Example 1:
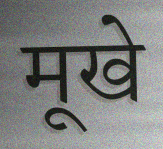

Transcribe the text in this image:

मूखे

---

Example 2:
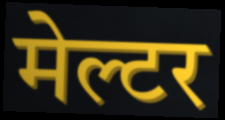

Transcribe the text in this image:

मेल्टर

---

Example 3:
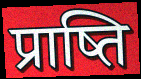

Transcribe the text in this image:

प्राष्ति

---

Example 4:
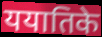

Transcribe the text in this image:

ययातिके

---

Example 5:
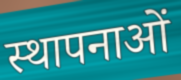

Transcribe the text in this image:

स्थापनाओं